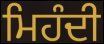
ਮਿਹੰਦੀ